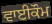
ਵਾਈਕੌਮ